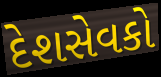
દેશસેવકો